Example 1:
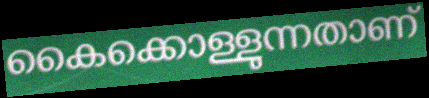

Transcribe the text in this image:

കൈക്കൊള്ളുന്നതാണ്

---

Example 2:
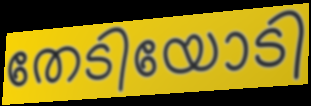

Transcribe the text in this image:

തേടിയോടി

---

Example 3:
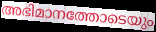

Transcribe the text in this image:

അഭിമാനത്തോടെയും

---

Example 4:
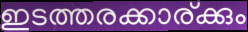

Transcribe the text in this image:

ഇടത്തരക്കാര്ക്കും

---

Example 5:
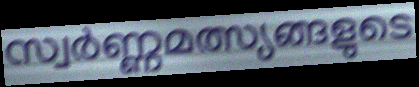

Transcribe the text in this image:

സ്വർണ്ണമത്സ്യങ്ങളുടെ